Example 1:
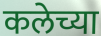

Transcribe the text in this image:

कलेच्या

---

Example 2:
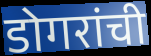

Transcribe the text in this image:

डोगरांची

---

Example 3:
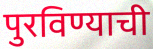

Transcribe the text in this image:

पुरविण्याची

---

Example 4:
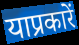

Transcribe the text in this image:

याप्रकारें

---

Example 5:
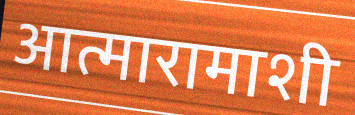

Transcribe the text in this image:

आत्मारामाशी